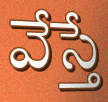
వేస్తే